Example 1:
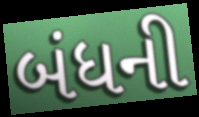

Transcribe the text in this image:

બંધની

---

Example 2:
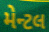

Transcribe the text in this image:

મેન્ટલ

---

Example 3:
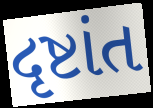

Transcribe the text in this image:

દૃષ્ટાંત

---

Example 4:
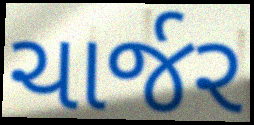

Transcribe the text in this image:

ચાર્જર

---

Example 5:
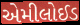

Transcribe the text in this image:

એમીલોઈડ